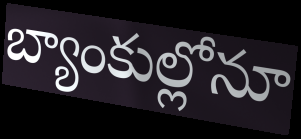
బ్యాంకుల్లోనూ